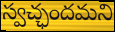
స్వచ్ఛందమని